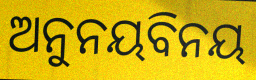
ଅନୁନୟବିନୟ